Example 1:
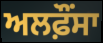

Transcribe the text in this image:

ਅਲਫ਼ੌਂਸਾ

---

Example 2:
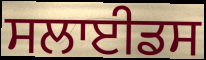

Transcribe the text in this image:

ਸਲਾਈਡਸ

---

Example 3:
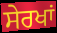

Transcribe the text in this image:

ਸੇਰਖਾਂ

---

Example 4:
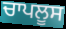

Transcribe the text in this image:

ਚਾਪਲੂਸ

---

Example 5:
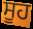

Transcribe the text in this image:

ਸੂਹ